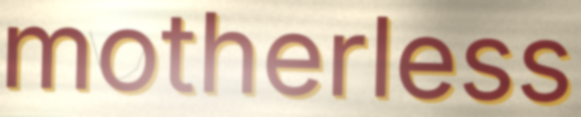
motherless